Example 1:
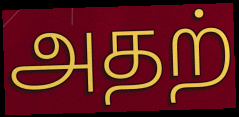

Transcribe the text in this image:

அதற்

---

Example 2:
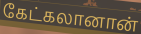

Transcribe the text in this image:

கேட்கலானான்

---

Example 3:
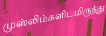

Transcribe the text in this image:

முஸ்லிம்களிடமிருந்து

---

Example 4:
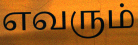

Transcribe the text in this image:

எவரும்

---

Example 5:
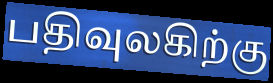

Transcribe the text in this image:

பதிவுலகிற்கு